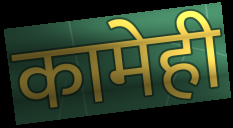
कामेही